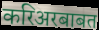
करिअरबाबत